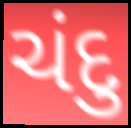
ચંદુ